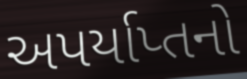
અપર્યાપ્તનો